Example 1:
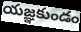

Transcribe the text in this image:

యజ్ఞకుండం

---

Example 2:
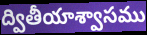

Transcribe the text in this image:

ద్వితీయాశ్వాసము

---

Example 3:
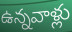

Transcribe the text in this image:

ఉన్నవాళ్లు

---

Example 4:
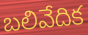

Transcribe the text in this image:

బలివేదిక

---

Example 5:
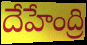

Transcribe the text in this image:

దేహేంద్రి